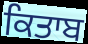
ਕਿਤਾਬ